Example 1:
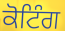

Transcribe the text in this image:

ਕੋਟਿੰਗ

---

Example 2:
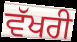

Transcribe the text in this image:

ਵੱਖਰੀ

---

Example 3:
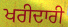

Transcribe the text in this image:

ਖਰੀਦਾਰੀ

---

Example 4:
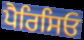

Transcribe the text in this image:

ਪੈਰਿਸਿਓ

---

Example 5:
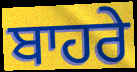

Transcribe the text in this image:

ਬਾਹਰੇ